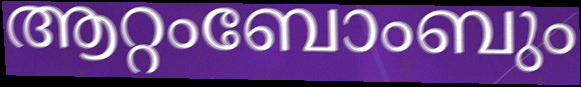
ആറ്റംബോംബും